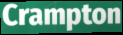
Crampton